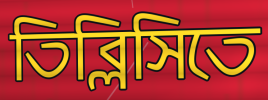
তিব্লিসিতে